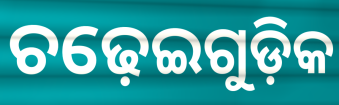
ଚଢ଼େଇଗୁଡ଼ିକ